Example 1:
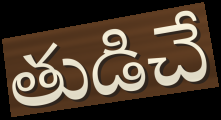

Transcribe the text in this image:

తుడిచే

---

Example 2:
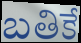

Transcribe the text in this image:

బతికే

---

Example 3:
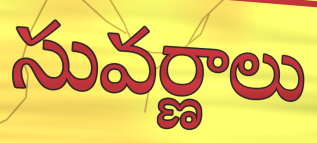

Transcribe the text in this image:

సువర్ణాలు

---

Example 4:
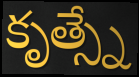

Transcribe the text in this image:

కృత్స్నే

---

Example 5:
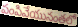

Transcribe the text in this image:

పంపివేయునంతలో